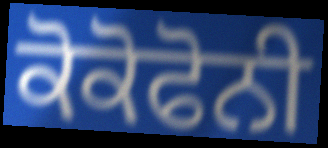
ਕੋਕੋਫੋਨੀ